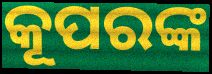
କୂପରଙ୍କ